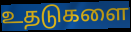
உதடுகளை